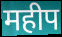
महीप